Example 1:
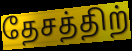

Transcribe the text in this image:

தேசத்திற்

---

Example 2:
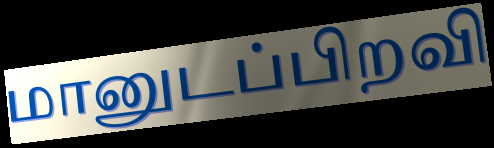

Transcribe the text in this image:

மானுடப்பிறவி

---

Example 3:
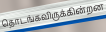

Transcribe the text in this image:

தொடங்கவிருக்கின்றன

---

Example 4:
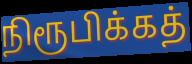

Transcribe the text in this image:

நிரூபிக்கத்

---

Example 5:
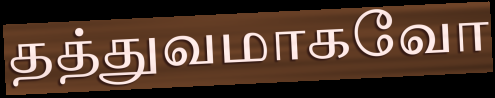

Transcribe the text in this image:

தத்துவமாகவோ